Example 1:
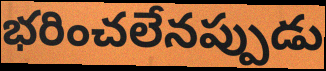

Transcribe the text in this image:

భరించలేనప్పుడు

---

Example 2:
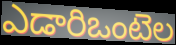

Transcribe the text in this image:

ఎడారిఒంటెల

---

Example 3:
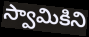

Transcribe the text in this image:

స్వామికిని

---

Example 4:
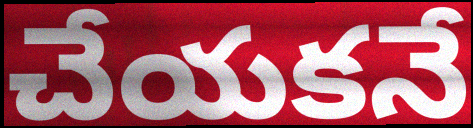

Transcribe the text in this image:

చేయకనే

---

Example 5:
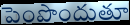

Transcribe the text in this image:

పెంపొందుతూ